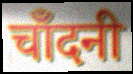
चॉँदनी